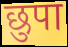
छुपा